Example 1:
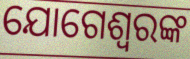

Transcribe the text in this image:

ଯୋଗେଶ୍ୱରଙ୍କ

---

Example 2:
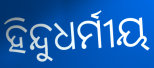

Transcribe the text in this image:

ହିନ୍ଦୁଧର୍ମୀୟ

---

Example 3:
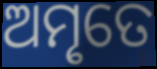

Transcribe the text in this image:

ଅମୃତେ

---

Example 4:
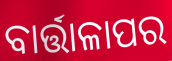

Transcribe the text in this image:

ବାର୍ତ୍ତାଳାପର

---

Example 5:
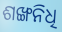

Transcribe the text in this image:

ଶଙ୍ଖନିଧି